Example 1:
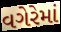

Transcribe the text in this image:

વગેરેમાં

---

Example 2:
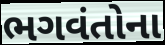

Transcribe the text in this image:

ભગવંતોના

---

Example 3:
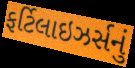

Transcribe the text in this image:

ફર્ટિલાઇઝર્સનું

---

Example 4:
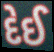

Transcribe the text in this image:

દેઈ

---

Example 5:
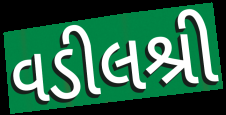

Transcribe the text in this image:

વડીલશ્રી